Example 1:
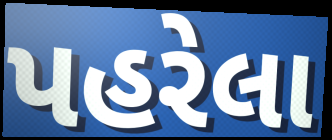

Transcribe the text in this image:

પહરેલા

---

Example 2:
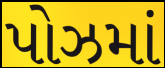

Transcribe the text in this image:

પોઝમાં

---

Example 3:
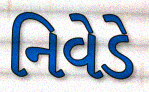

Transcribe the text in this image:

નિવેડે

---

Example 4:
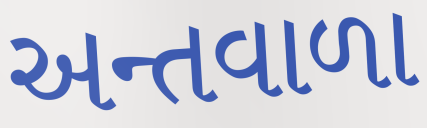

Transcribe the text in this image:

અન્તવાળા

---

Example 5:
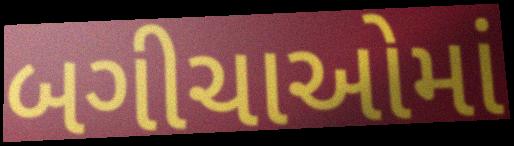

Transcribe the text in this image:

બગીચાઓમાં